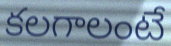
కలగాలంటే